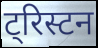
ट्रिस्टन